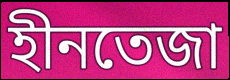
হীনতেজা